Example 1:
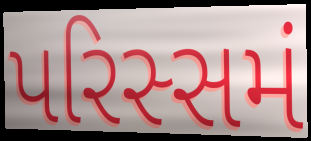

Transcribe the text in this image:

પરિસ્સમં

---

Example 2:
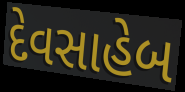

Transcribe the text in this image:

દેવસાહેબ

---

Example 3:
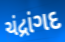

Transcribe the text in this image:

ચંદ્રાંગદ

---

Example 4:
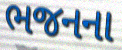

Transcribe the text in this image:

ભજનના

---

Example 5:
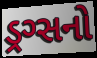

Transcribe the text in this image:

ડ્રગ્સનો